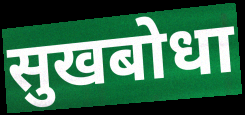
सुखबोधा